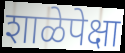
शाळेपेक्षा